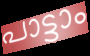
പാട്ടാം